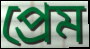
প্ৰেম